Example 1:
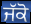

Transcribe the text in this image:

ਜੱਕੋ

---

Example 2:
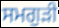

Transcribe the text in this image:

ਸਮਗੁੜੀ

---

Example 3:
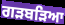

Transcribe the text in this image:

ਗੜਬੜਿਆ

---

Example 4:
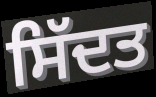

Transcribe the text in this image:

ਸਿੱਦਤ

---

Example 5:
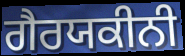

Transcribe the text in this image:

ਗੈਰਯਕੀਨੀ